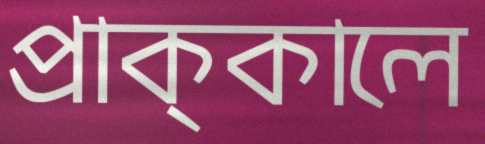
প্রাক্‌কালে